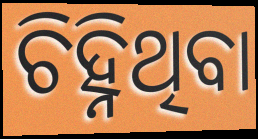
ଚିହ୍ନିଥିବା